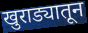
खुराड्यातून